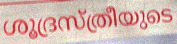
ശൂദ്രസ്ത്രീയുടെ